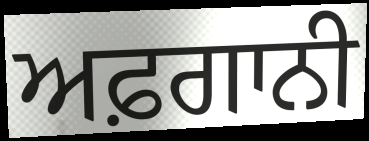
ਅਫ਼ਗਾਨੀ